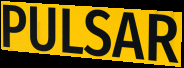
PULSAR